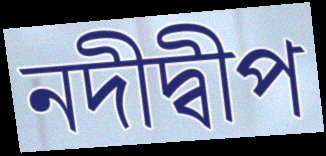
নদীদ্বীপ